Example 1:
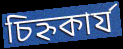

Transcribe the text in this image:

চিহ্নকার্য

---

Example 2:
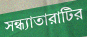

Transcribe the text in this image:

সন্ধ্যাতারাটির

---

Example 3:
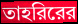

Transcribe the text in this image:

তাহরিরের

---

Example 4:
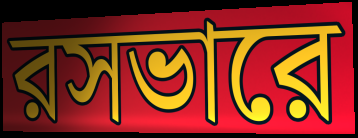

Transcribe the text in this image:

রসভারে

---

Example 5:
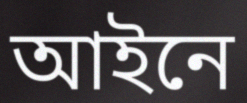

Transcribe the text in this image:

আইনে